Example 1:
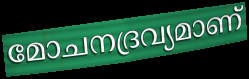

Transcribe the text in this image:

മോചനദ്രവ്യമാണ്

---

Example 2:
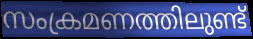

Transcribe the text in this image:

സംക്രമണത്തിലുണ്ട്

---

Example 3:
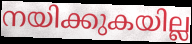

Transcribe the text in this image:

നയിക്കുകയില്ല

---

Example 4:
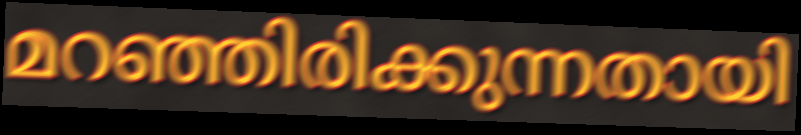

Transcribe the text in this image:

മറഞ്ഞിരിക്കുന്നതായി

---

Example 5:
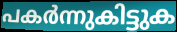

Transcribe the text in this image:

പകർന്നുകിട്ടുക